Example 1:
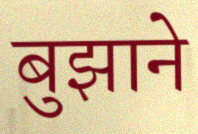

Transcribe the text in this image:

बुझाने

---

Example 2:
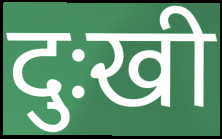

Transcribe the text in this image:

दुःखी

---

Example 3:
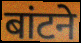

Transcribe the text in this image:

बांटने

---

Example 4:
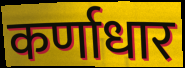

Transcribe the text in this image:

कर्णाधार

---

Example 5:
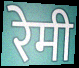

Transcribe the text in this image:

रेमी